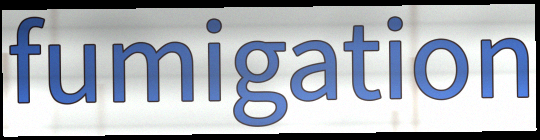
fumigation